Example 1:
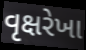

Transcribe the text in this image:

વૃક્ષરેખા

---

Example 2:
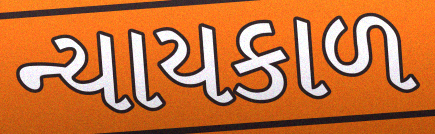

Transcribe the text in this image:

ન્યાયકાળ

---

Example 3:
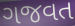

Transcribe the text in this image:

ગજવત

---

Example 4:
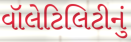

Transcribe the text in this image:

વૉલેટિલિટીનું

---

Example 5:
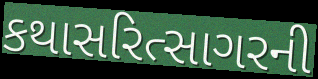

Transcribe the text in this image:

કથાસરિત્સાગરની